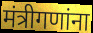
मंत्रीगणांना